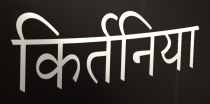
किर्तनिया